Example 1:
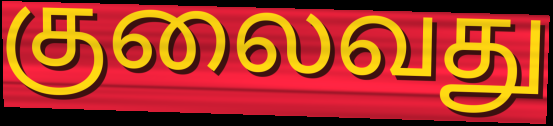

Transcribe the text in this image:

குலைவது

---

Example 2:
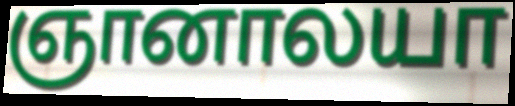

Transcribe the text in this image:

ஞானாலயா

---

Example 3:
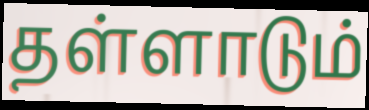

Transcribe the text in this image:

தள்ளாடும்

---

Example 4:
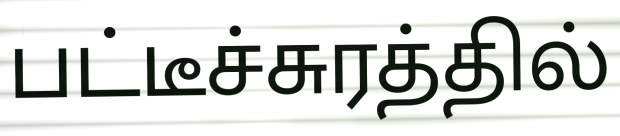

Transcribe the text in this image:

பட்டீச்சுரத்தில்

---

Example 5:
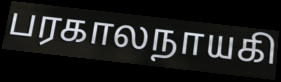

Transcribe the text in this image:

பரகாலநாயகி